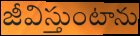
జీవిస్తుంటాను